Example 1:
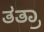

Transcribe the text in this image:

ತತ್ರಾ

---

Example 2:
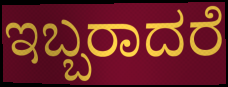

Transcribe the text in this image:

ಇಬ್ಬರಾದರೆ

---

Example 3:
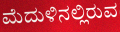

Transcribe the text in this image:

ಮೆದುಳಿನಲ್ಲಿರುವ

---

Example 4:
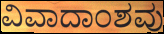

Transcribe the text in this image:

ವಿವಾದಾಂಶವು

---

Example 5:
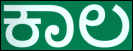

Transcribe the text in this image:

ಕಾಲ